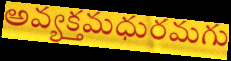
అవ్యక్తమధురమగు